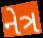
નેત્ર